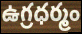
ఉగ్రధర్మం